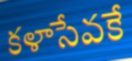
కళాసేవకే